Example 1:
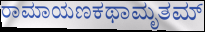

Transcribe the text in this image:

ರಾಮಾಯಣಕಥಾಮೃತಮ್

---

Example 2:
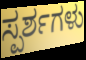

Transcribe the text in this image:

ಸ್ಪರ್ಶಗಳು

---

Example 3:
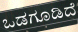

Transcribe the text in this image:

ಒಡಗೂಡಿದೆ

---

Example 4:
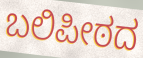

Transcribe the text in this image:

ಬಲಿಪೀಠದ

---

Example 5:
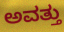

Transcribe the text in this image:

ಅವತ್ತು